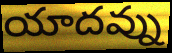
యాదవ్ను